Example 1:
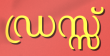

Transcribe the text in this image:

ഡ്രസ്സ്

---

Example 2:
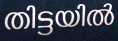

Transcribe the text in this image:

തിട്ടയിൽ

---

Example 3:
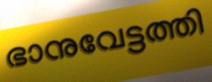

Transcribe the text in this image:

ഭാനുവേട്ടത്തി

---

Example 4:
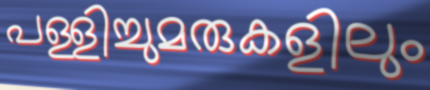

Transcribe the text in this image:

പള്ളിച്ചുമരുകളിലും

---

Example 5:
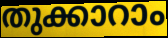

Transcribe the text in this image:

തുക്കാറാം